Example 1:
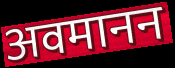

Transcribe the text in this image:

अवमानन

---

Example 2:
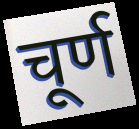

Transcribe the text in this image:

चूर्ण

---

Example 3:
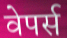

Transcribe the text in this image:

वेपर्स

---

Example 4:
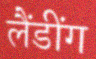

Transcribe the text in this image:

लैंडींग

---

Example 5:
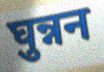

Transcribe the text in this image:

घुन्नन